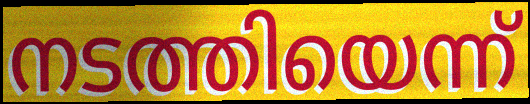
നടത്തിയെന്ന്